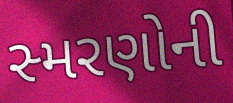
સ્મરણોની